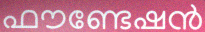
ഫൗണ്ടേഷൻ